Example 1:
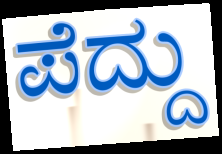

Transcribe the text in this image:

ಪೆದ್ದು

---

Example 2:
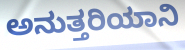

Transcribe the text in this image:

ಅನುತ್ತರಿಯಾನಿ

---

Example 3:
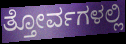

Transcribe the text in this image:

ತ್ತೋರ್ವಗಳಲ್ಲಿ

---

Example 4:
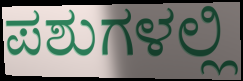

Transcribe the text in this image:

ಪಶುಗಳಲ್ಲಿ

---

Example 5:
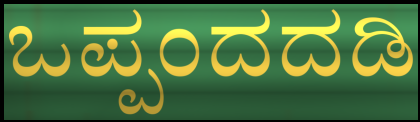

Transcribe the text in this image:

ಒಪ್ಪಂದದಡಿ